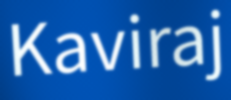
Kaviraj